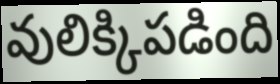
వులిక్కిపడింది